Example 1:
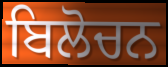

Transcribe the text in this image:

ਬਿਲੋਚਨ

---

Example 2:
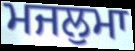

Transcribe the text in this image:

ਮਜਲੁਮਾ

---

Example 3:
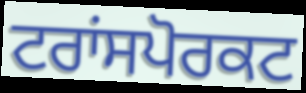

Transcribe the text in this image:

ਟਰਾਂਸਪੋਰਕਟ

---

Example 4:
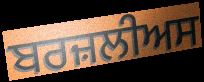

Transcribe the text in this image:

ਬਰਜ਼ਲੀਅਸ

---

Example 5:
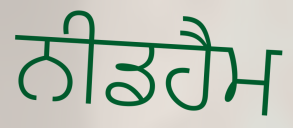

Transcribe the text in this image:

ਨੀਡਹੈਮ